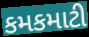
કમકમાટી